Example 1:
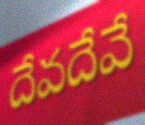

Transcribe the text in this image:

దేవదేవే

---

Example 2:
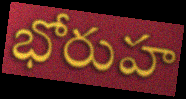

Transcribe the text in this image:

భోరుహ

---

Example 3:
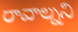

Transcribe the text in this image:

రావాల్నని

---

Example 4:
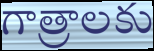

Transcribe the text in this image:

గాత్రాలకు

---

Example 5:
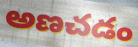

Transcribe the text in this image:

అణచడం